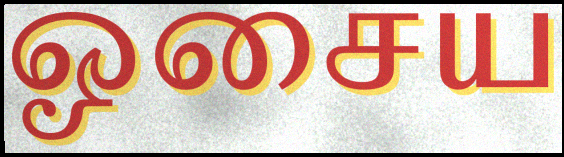
ஓசைய